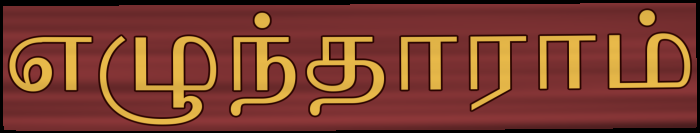
எழுந்தாராம்